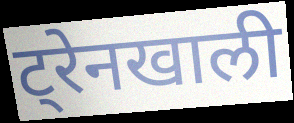
ट्रेनखाली